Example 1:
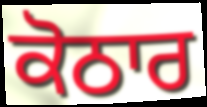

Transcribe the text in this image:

ਕੋਠਾਰ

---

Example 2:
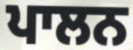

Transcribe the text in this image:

ਪਾਲਨ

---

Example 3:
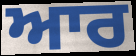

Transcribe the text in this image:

ਆਰ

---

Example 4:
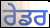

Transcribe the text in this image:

ਰੇਡਰ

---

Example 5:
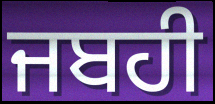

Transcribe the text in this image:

ਜਬਹੀ